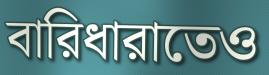
বারিধারাতেও